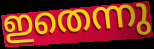
ഇതെന്നു